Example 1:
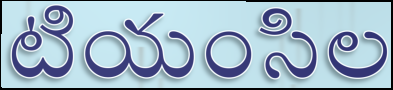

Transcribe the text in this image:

టియంసిల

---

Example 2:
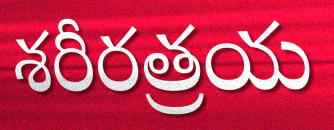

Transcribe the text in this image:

శరీరత్రయ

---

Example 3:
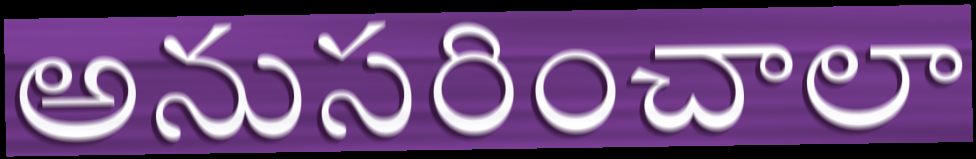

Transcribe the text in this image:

అనుసరించాలా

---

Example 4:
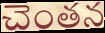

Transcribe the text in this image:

చెంతన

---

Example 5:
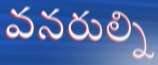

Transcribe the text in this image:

వనరుల్ని